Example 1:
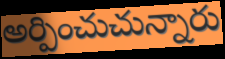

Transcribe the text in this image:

అర్పించుచున్నారు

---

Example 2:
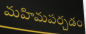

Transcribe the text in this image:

మహిమపర్చడం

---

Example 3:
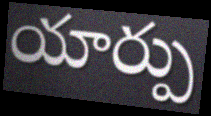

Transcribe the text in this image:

యార్పు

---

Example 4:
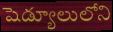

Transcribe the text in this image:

షెడ్యూలులోని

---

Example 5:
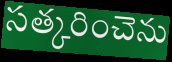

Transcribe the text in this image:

సత్కరించెను